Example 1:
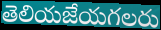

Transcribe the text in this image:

తెలియజేయగలరు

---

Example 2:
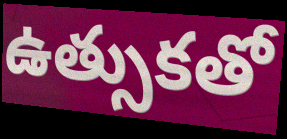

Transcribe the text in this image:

ఉత్సుకతో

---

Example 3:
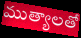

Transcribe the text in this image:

ముత్యాలతో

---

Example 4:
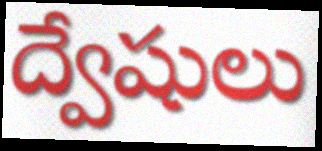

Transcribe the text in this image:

ద్వేషులు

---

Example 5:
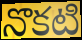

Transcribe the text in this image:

నొకటి